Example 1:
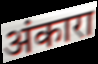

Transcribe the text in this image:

अंकारा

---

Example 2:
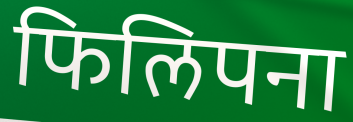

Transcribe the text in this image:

फिलिपना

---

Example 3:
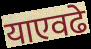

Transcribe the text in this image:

याएवढे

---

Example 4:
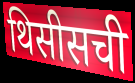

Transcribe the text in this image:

थिसीसची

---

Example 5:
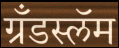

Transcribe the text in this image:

ग्रँडस्लॅम